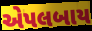
એપલબાય